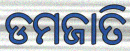
ଡମଜାତି